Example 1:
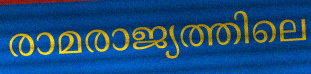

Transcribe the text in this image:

രാമരാജ്യത്തിലെ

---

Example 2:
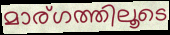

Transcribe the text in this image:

മാര്ഗത്തിലൂടെ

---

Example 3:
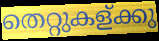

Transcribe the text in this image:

തെറ്റുകള്ക്കു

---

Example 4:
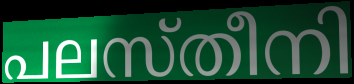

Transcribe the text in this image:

പലസ്തീനി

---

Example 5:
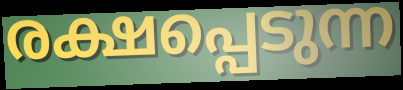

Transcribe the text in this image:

രക്ഷപ്പെടുന്ന